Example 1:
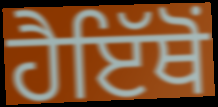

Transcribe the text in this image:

ਹੈਇੱਥੋਂ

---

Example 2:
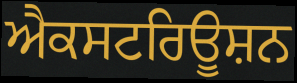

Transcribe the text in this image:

ਐਕਸਟਰਿਊਸ਼ਨ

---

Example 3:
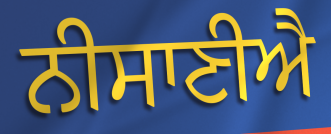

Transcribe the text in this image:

ਨੀਸਾਣੀਐ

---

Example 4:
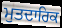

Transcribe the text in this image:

ਮੁਤਦਾਰਿਕ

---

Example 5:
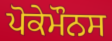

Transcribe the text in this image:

ਪੋਕੇਮੌਨਸ